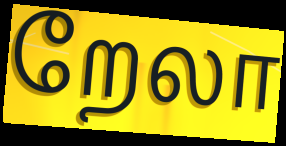
றேலா